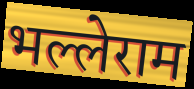
भल्लेराम